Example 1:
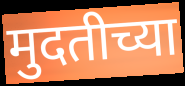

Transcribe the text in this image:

मुदतीच्या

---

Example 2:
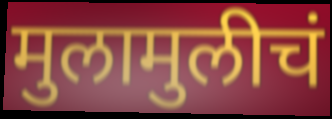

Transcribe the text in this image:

मुलामुलीचं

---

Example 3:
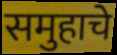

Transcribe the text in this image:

समुहाचे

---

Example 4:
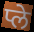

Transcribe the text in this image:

प्ले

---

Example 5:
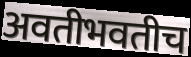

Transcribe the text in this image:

अवतीभवतीच